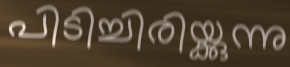
പിടിച്ചിരിയ്ക്കുന്നു